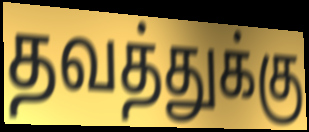
தவத்துக்கு